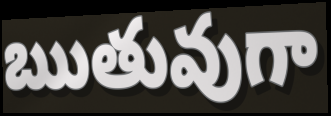
ఋతువుగా